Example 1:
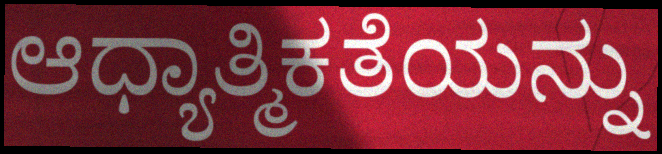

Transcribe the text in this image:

ಆಧ್ಯಾತ್ಮಿಕತೆಯನ್ನು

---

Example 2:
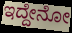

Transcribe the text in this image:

ಇದ್ದೇನೋ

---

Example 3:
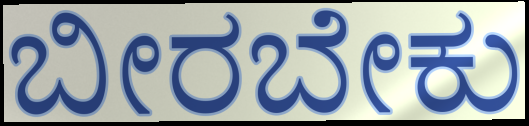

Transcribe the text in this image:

ಬೀರಬೇಕು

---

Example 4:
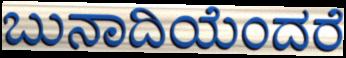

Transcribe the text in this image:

ಬುನಾದಿಯೆಂದರೆ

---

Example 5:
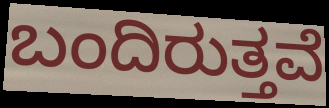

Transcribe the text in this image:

ಬಂದಿರುತ್ತವೆ